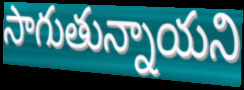
సాగుతున్నాయని